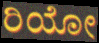
ರಿಯೋ